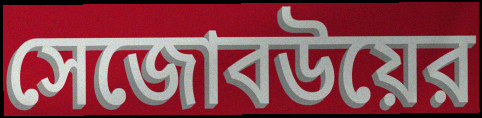
সেজোবউয়ের